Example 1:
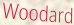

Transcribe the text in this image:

Woodard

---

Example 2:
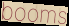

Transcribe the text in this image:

booms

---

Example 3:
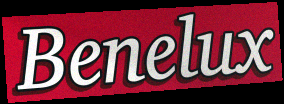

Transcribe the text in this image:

Benelux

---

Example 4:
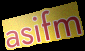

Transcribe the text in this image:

asifm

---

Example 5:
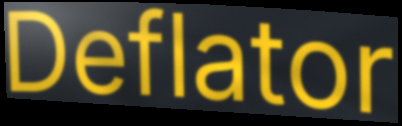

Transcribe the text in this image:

Deflator